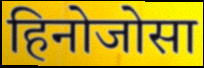
हिनोजोसा